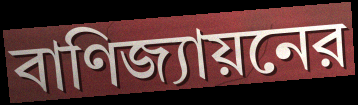
বাণিজ্যায়নের